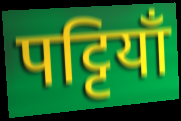
पट्टियाँ